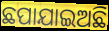
ଛପାଯାଇଅଛି